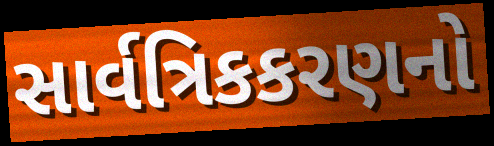
સાર્વત્રિકકરણનો